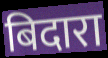
बिदारा